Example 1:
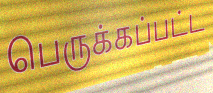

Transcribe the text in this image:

பெருக்கப்பட்ட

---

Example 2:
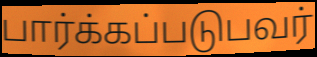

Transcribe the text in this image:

பார்க்கப்படுபவர்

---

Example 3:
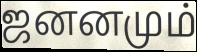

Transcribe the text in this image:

ஜனனமும்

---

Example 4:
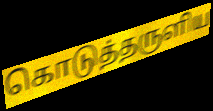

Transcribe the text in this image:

கொடுத்தருளிய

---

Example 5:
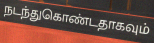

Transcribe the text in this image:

நடந்துகொண்டதாகவும்